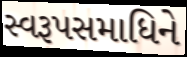
સ્વરૂપસમાધિને